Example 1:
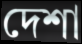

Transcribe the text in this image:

দেশা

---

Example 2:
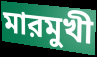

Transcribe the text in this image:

মারমুখী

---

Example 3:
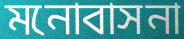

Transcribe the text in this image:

মনোবাসনা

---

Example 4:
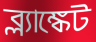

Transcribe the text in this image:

ব্ল্যাঙ্কেট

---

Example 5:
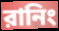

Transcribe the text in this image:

রানিং